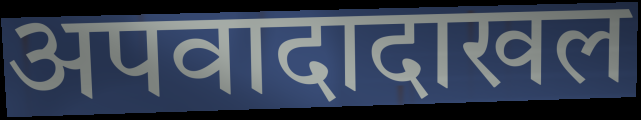
अपवादादाखल